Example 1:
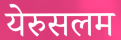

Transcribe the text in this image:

येरुसलम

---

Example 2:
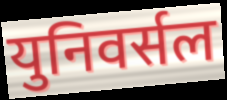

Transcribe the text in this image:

युनिवर्सल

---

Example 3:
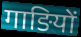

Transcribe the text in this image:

गाङियों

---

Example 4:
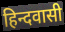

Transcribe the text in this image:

हिन्दवासी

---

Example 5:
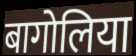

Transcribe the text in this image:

बागोलिया